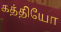
கத்தியோ